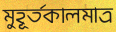
মুহূর্তকালমাত্র